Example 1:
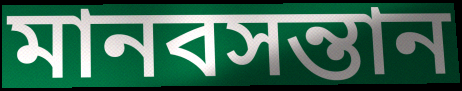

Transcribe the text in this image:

মানবসন্তান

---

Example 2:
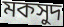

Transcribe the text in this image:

মকসুদ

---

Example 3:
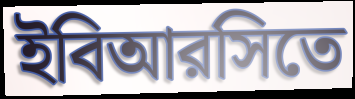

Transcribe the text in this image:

ইবিআরসিতে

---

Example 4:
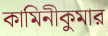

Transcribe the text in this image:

কামিনীকুমার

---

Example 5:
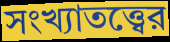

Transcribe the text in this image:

সংখ্যাতত্ত্বের